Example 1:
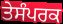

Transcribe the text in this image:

ਤੇਸੰਪਰਕ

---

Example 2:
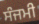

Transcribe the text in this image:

ਸੰਜਮੀ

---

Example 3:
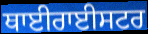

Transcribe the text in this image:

ਥਾਈਰਾਈਸਟਰ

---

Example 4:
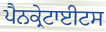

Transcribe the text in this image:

ਪੈਨਕ੍ਰੇਟਾਈਟਸ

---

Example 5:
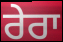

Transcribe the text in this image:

ਰੇਰਾ